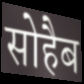
सोहैब